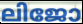
ലിജോ